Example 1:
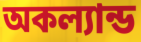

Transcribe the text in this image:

অকল্যান্ড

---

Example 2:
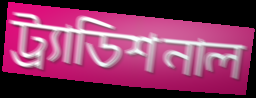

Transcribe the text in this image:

ট্র্যাডিশনাল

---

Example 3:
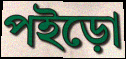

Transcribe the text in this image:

পইড়ো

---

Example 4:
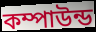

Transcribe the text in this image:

কম্পাউন্ড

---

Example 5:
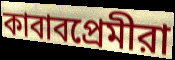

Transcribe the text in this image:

কাবাবপ্রেমীরা